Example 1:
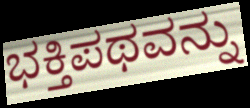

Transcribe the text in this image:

ಭಕ್ತಿಪಥವನ್ನು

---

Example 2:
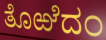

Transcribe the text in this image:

ತೊಱೆದಂ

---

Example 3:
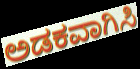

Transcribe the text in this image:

ಅಡಕವಾಗಿಸಿ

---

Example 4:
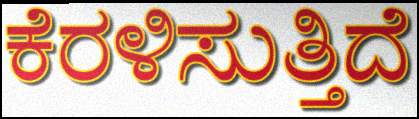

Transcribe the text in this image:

ಕೆರಳಿಸುತ್ತಿದೆ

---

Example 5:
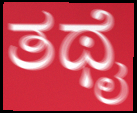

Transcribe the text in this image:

ತಥೈ